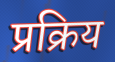
प्रक्रिय